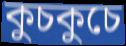
কুচকুচে